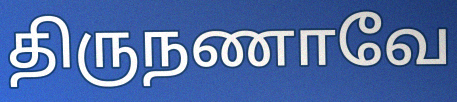
திருநணாவே